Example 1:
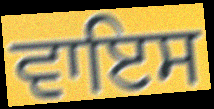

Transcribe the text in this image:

ਵਾਇਸ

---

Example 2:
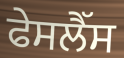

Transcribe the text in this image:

ਫੇਸਲੈੱਸ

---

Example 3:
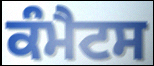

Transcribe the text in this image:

ਕੰਮੈਟਸ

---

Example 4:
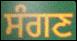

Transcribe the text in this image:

ਸੰਗਣ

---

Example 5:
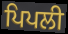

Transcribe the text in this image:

ਪਿਪਲੀ